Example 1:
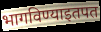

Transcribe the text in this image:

भागविण्याइतपत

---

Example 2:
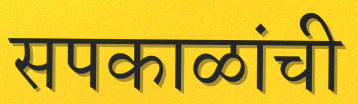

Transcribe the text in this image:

सपकाळांची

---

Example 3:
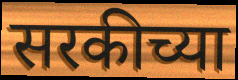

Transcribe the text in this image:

सरकीच्या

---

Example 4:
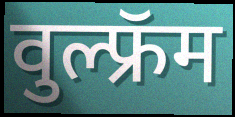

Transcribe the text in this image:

वुल्फ्रॅम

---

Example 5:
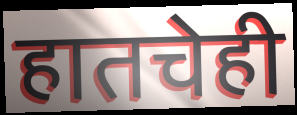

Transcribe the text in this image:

हातचेही